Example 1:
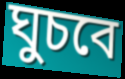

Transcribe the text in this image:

ঘুচবে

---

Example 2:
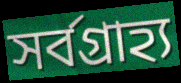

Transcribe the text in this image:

সর্বগ্রাহ্য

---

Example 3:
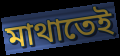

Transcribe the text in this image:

মাথাতেই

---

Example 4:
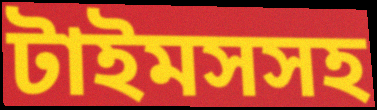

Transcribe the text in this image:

টাইমসসহ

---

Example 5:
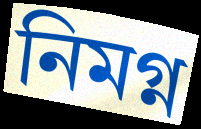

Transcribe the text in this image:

নিমগ্ন